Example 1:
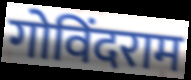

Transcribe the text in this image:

गोविंदराम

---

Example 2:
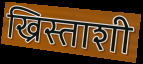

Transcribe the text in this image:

ख्रिस्ताशी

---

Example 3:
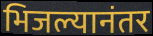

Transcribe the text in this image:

भिजल्यानंतर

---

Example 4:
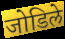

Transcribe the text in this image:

जोडिले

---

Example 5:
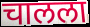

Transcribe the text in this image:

चालला